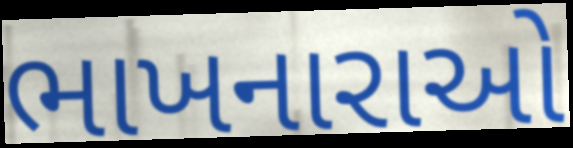
ભાખનારાઓ